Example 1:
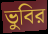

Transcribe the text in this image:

ভুবির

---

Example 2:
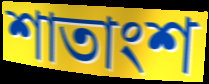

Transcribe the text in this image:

শাতাংশ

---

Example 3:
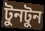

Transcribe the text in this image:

টুনটুন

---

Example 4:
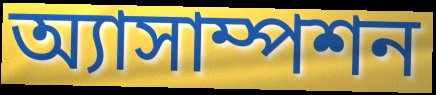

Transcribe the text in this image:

অ্যাসাম্পশন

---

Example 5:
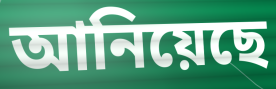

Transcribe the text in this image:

আনিয়েছে